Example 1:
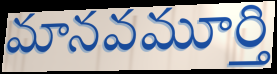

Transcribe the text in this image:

మానవమూర్తి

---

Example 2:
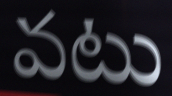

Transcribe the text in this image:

వటు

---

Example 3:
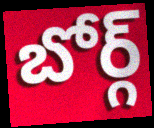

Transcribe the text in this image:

బోర్గ్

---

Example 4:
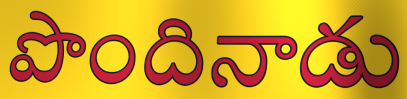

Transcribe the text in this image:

పొందినాడు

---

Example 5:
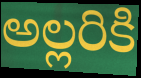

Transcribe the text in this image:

అల్లరికి